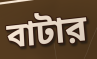
বাটার